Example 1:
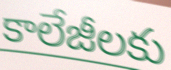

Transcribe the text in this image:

కాలేజీలకు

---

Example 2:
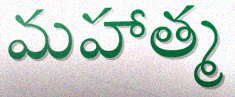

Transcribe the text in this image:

మహాత్మ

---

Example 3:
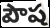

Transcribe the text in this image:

పౌష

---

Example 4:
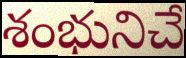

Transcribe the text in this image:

శంభునిచే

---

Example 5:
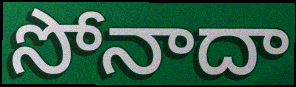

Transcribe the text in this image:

సోనాదా